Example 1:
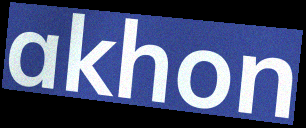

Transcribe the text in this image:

akhon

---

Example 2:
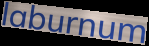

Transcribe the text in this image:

laburnum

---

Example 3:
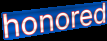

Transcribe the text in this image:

honored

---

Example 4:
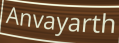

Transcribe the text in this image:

Anvayarth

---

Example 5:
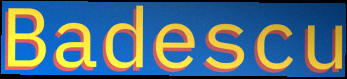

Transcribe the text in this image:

Badescu